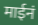
माईनं